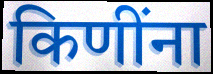
किणींना